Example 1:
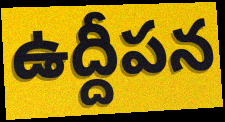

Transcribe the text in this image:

ఉద్దీపన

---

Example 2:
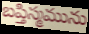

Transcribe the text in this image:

బప్తిస్మమును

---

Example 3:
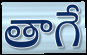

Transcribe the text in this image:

తాగే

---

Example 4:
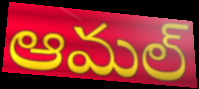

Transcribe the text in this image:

ఆమల్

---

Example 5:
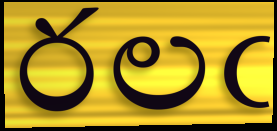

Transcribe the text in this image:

రలఁ